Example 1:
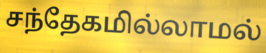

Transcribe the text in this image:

சந்தேகமில்லாமல்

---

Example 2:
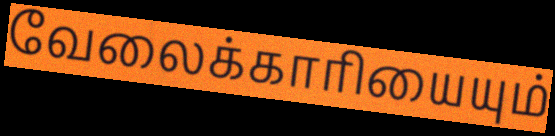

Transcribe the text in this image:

வேலைக்காரியையும்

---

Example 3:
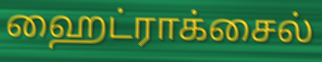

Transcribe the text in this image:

ஹைட்ராக்சைல்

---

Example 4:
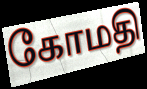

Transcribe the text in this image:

கோமதி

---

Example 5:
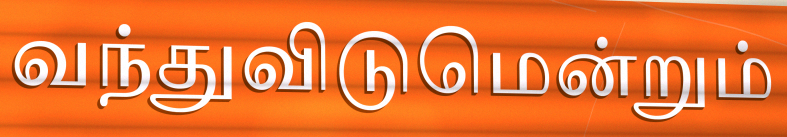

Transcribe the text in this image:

வந்துவிடுமென்றும்